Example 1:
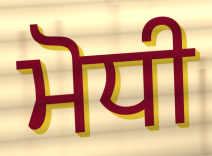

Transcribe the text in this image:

ਮੋਧੀ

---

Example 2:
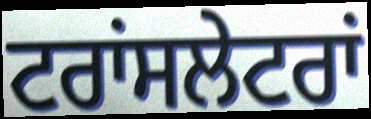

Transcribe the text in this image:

ਟਰਾਂਸਲੇਟਰਾਂ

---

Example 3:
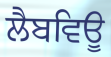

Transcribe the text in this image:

ਲੈਬਵਿਊ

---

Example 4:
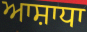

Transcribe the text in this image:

ਆਸ਼ਾਧਾ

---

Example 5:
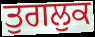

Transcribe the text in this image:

ਤੁਗਲੁਕ